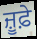
ਜ਼ੂਫ਼ੇ